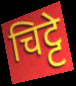
चिट्टे